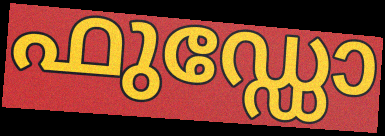
ഫുഡ്ഡോ